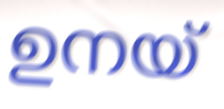
ഉനയ്